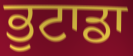
ਭੁਟਾਡਾ